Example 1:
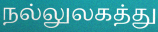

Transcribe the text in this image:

நல்லுலகத்து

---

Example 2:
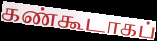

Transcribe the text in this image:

கண்கூடாகப்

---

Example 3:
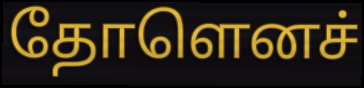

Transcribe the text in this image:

தோளெனச்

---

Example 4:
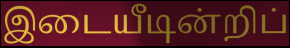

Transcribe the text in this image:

இடையீடின்றிப்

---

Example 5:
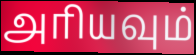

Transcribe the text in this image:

அரியவும்